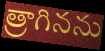
త్రాగినను